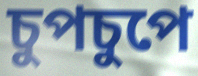
চুপচুপে